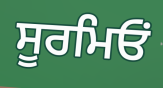
ਸੂਰਮਿਓਂ